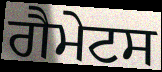
ਗੈਮੇਟਸ